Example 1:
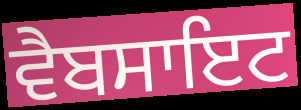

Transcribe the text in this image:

ਵੈਬਸਾਇਟ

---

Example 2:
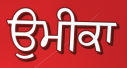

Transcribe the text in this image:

ਉਮੀਕਾ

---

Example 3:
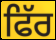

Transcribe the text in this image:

ਫਿੱਰ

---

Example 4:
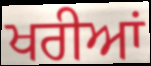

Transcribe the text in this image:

ਖਰੀਆਂ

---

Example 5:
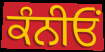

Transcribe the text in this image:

ਕੰਨੀਓਂ